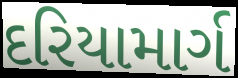
દરિયામાર્ગ